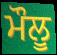
ਮੌਲੂ